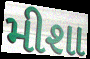
મીશા